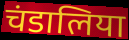
चंडालिया